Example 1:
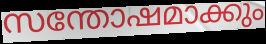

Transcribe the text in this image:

സന്തോഷമാക്കും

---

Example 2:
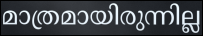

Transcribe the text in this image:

മാത്രമായിരുന്നില്ല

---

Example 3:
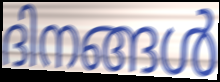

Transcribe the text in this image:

ദിനങ്ങൾ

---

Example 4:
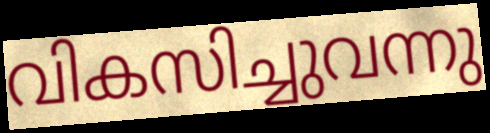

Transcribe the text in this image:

വികസിച്ചുവന്നു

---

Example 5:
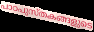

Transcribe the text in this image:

പാഠപുസ്തകങ്ങളുടെ